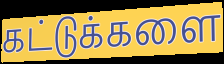
கட்டுக்களை